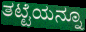
ತಟ್ಟೆಯನ್ನೂ